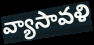
వ్యాసావళి